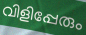
വിളിപ്പേരും